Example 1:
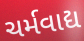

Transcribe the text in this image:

ચર્મવાદ્ય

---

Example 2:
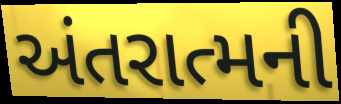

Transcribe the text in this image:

અંતરાત્મની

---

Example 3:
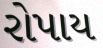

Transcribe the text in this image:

રોપાય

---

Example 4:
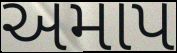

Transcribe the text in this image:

અમાપ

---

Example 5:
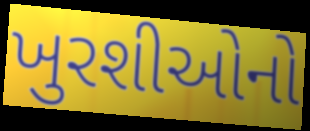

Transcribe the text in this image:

ખુરશીઓનો